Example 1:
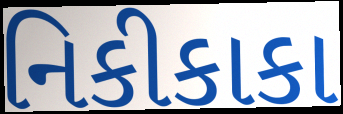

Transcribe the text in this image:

નિકીકાકા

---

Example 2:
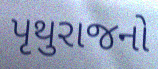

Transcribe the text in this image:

પૃથુરાજનો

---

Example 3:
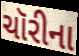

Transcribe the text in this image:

ચૉરીના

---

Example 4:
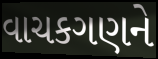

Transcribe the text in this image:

વાચકગણને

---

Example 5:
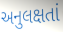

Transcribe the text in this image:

અનુલક્ષતાં